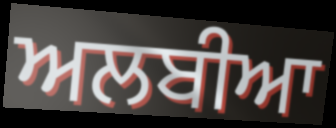
ਅਲਬੀਆ